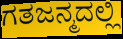
ಗತಜನ್ಮದಲ್ಲಿ